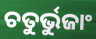
ଚତୁର୍ଭୁଜାଂ